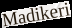
Madikeri